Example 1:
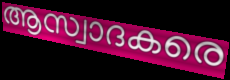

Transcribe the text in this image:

ആസ്വാദകരെ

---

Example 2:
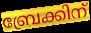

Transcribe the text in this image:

ബ്രേക്കിന്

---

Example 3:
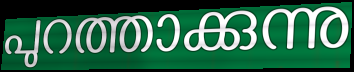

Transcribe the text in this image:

പുറത്താക്കുന്നു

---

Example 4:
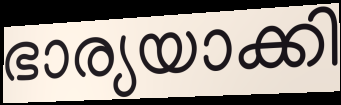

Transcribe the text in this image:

ഭാര്യയാക്കി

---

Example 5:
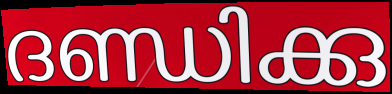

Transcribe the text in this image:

ദണ്ഡിക്കു